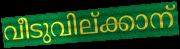
വീടുവില്ക്കാന്